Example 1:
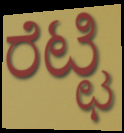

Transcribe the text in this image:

ರೆಟ್ಟಿ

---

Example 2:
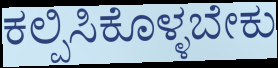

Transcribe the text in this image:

ಕಲ್ಪಿಸಿಕೊಳ್ಳಬೇಕು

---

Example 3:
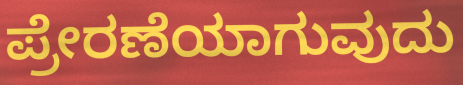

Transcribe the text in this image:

ಪ್ರೇರಣೆಯಾಗುವುದು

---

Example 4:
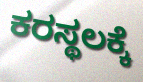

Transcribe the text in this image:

ಕರಸ್ಥಲಕ್ಕೆ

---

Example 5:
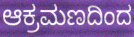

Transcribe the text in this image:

ಆಕ್ರಮಣದಿಂದ